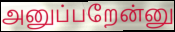
அனுப்பறேன்னு